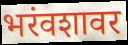
भरंवशावर